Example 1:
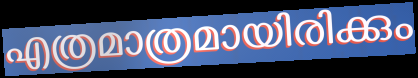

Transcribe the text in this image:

എത്രമാത്രമായിരിക്കും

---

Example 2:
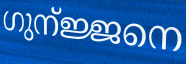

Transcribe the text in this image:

ഗുന്ജ്ജനെ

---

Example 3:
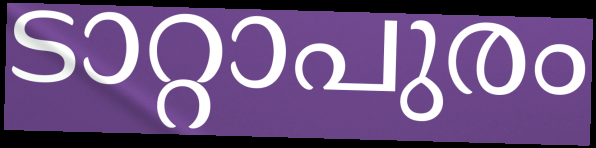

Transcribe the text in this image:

ടാറ്റാപുരം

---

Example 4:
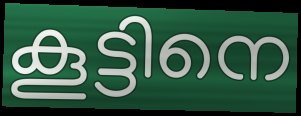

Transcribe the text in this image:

കൂട്ടിനെ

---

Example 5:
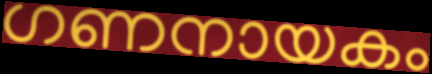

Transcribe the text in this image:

ഗണനായകം